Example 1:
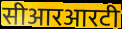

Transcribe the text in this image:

सीआरआरटी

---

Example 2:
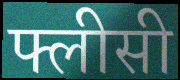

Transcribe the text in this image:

फ्लीसी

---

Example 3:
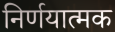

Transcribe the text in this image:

निर्णयात्मक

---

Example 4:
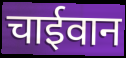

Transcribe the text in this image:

चाईवान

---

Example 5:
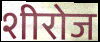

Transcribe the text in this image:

शीरोज